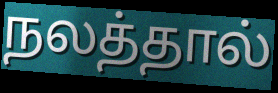
நலத்தால்